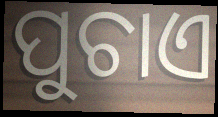
ପୁଚାଏ